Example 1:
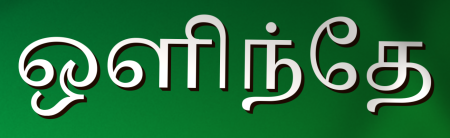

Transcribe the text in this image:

ஒளிந்தே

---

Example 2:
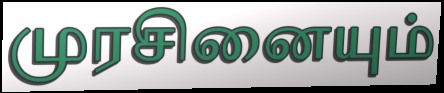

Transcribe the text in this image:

முரசினையும்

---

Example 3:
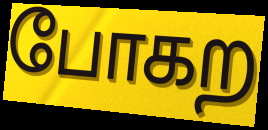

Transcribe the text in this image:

போகற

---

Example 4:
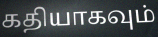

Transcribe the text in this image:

கதியாகவும்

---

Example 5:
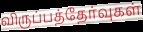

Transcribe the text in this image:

விருப்பத்தேர்வுகள்